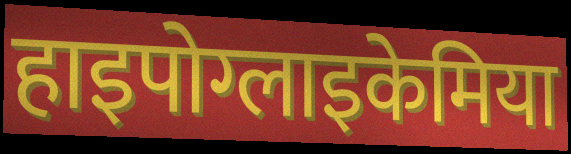
हाइपोग्लाइकेमिया